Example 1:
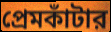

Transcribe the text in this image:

প্রেমকাঁটার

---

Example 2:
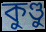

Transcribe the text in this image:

কুণ্ডু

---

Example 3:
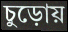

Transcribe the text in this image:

চুড়োয়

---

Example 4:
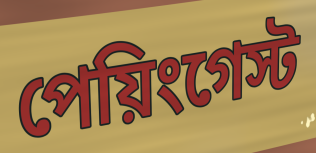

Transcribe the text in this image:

পেয়িংগেস্ট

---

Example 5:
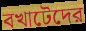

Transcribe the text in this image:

বখাটেদের